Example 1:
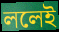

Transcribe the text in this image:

ললেই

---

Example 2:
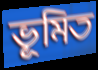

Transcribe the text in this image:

ভূমিত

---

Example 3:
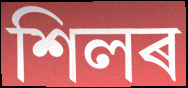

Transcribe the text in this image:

শিলৰ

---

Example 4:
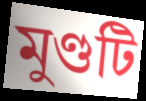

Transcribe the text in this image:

মুণ্ডটি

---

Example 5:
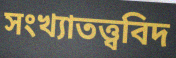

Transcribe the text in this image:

সংখ্যাতত্ত্ববিদ